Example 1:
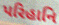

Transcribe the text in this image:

પરિહાનિ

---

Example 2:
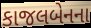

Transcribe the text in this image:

કાજલબેનના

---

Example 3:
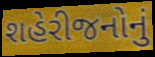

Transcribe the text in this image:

શહેરીજનોનું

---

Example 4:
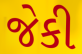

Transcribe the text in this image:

જેકી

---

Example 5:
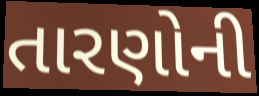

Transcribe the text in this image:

તારણોની